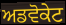
ਅਡਵੋਕੇਟ